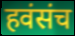
हवंसंच